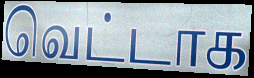
வெட்டாக